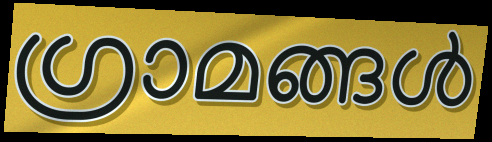
ഗ്രാമങ്ങൾ